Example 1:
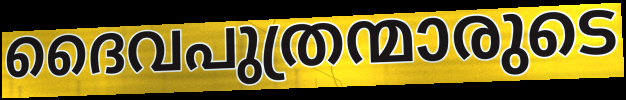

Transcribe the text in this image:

ദൈവപുത്രന്മാരുടെ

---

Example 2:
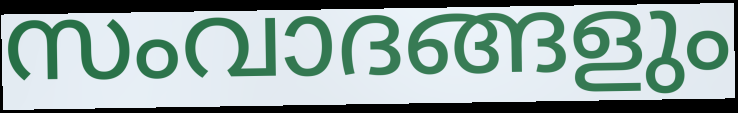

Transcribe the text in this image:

സംവാദങ്ങളും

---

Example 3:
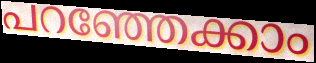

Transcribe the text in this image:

പറഞ്ഞേക്കാം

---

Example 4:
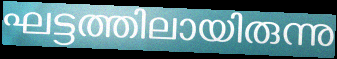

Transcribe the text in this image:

ഘട്ടത്തിലായിരുന്നു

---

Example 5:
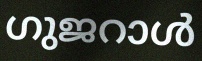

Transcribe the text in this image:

ഗുജറാൾ